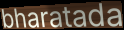
bharatada